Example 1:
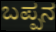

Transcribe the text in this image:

ಬಪ್ಪನ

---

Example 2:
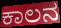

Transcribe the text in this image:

ಕಾಲನ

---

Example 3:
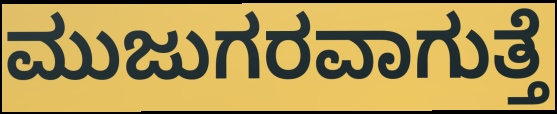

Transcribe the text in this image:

ಮುಜುಗರವಾಗುತ್ತೆ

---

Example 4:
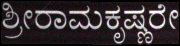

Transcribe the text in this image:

ಶ್ರೀರಾಮಕೃಷ್ಣರೇ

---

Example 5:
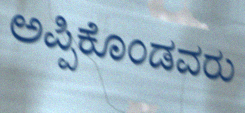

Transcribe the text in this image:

ಅಪ್ಪಿಕೊಂಡವರು